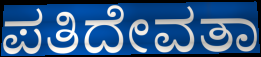
ಪತಿದೇವತಾ